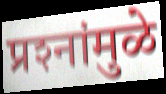
प्रश्नांमुळे